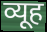
व्यूह